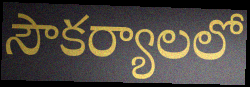
సౌకర్యాలలో